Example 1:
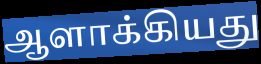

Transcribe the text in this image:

ஆளாக்கியது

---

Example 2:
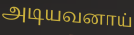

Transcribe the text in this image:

அடியவனாய்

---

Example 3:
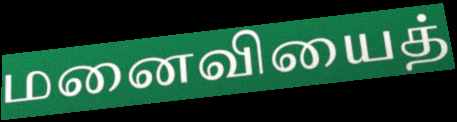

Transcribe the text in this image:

மனைவியைத்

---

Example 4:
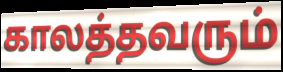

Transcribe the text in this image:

காலத்தவரும்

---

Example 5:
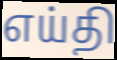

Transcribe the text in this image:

எய்தி